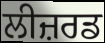
ਲੀਜ਼ਰਡ